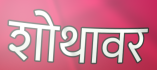
शोथावर